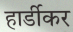
हार्डीकर